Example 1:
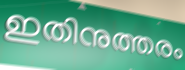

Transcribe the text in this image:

ഇതിനുത്തരം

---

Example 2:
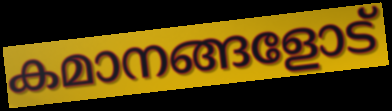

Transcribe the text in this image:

കമാനങ്ങളോട്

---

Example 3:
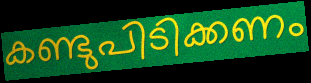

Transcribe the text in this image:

കണ്ടുപിടിക്കണം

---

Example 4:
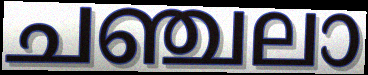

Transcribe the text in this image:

ചഞ്ചലാ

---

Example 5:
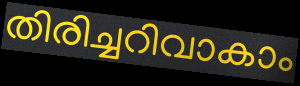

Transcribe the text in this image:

തിരിച്ചറിവാകാം